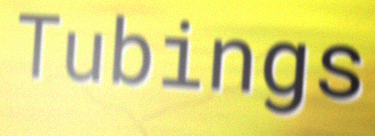
Tubings